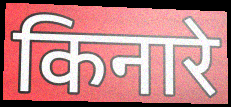
किनारे